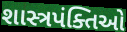
શાસ્ત્રપંક્તિઓ